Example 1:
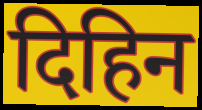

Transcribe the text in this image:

दिहिन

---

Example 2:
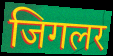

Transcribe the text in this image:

जिगलर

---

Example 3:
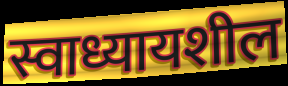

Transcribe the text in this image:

स्वाध्यायशील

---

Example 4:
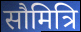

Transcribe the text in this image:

सौमित्रि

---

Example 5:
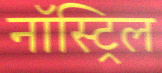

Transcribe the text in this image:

नॉस्ट्रिल